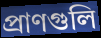
প্রাণগুলি